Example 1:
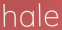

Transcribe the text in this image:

hale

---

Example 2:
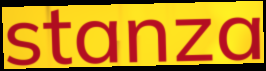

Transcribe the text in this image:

stanza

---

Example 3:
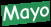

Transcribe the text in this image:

Mayo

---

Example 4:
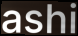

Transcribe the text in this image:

ashi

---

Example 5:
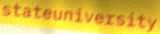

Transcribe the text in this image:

stateuniversity